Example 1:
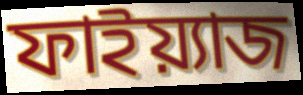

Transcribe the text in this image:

ফাইয়্যাজ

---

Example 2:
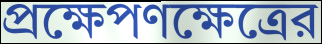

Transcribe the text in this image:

প্রক্ষেপণক্ষেত্রের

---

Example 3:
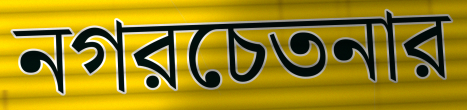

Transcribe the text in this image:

নগরচেতনার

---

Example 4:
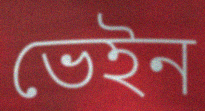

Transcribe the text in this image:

ভেইন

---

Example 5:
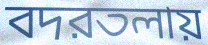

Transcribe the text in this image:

বদরতলায়